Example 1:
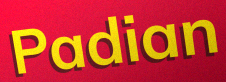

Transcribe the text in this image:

Padian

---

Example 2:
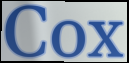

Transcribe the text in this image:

Cox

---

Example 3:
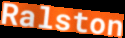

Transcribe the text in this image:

Ralston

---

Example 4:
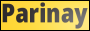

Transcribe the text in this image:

Parinay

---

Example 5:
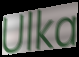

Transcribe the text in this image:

Ulka